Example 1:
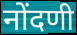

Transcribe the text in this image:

नोंदणी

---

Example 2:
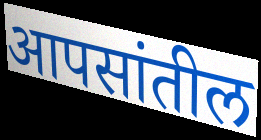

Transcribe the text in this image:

आपसांतील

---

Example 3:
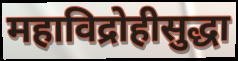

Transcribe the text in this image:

महाविद्रोहीसुद्धा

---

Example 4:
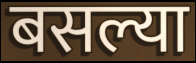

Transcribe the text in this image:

बसल्या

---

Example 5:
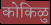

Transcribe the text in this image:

कोकिळु